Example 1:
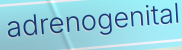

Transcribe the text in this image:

adrenogenital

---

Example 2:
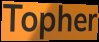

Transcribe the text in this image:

Topher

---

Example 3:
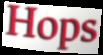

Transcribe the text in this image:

Hops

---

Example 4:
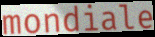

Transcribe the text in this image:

mondiale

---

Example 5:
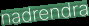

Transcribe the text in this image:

nadrendra